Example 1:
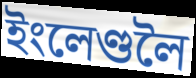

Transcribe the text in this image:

ইংলেণ্ডলৈ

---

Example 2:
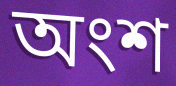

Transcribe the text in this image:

অংশ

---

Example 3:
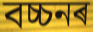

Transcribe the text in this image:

বচ্চনৰ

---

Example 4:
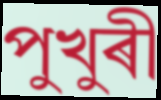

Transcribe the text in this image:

পুখুৰী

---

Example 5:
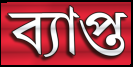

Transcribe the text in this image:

ব্যাপ্ত